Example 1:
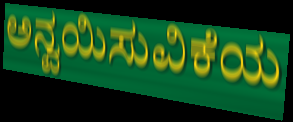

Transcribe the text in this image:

ಅನ್ವಯಿಸುವಿಕೆಯ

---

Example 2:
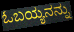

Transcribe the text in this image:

ಓಬಯ್ಯನನ್ನು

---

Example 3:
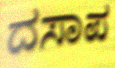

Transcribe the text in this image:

ದಸಾಪ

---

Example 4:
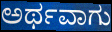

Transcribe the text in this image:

ಅರ್ಥವಾಗು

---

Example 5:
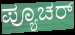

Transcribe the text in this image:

ಪ್ಯೂಚರ್